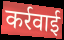
कर्रवाई